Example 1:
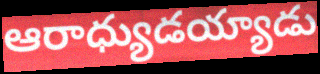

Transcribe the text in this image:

ఆరాధ్యుడయ్యాడు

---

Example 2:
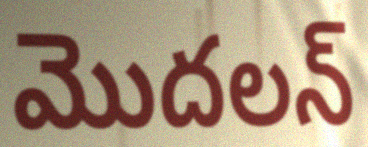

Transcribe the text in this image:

మొదలన్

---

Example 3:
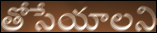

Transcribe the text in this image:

తోసేయాలని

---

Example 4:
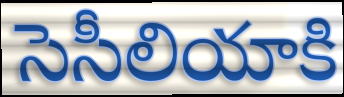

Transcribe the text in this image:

సెసీలియాకి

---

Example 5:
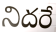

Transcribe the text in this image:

నిదరే